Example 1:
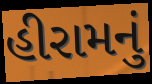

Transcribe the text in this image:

હીરામનું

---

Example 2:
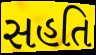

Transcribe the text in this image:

સહતિ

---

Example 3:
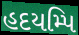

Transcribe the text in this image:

હદયમ્પિ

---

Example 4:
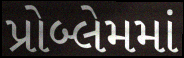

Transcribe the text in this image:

પ્રોબ્લેમમાં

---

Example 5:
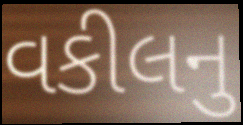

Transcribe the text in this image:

વકીલનુ